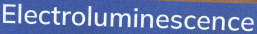
Electroluminescence